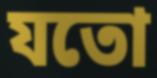
যতো